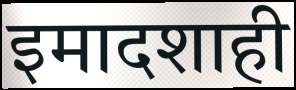
इमादशाही